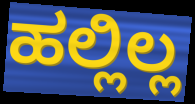
ಹಲ್ಲಿಲ್ಲ